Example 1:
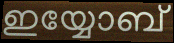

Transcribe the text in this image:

ഇയ്യോബ്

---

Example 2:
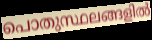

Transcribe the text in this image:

പൊതുസ്ഥലങ്ങളിൽ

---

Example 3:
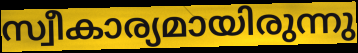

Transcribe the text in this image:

സ്വീകാര്യമായിരുന്നു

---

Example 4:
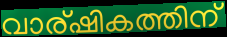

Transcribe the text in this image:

വാര്ഷികത്തിന്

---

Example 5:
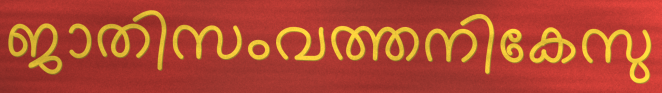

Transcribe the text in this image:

ജാതിസംവത്തനികേസു